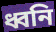
ধ্বনি